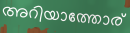
അറിയാത്തോര്